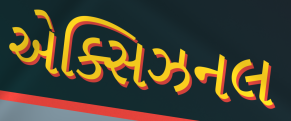
એક્સિઝનલ